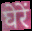
घेरें